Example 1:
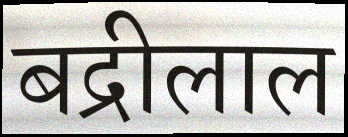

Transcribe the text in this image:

बद्रीलाल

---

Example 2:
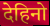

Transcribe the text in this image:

देहिनो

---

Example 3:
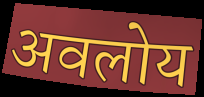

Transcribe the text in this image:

अवलोय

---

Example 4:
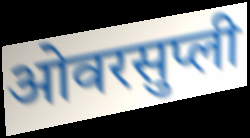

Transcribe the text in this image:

ओवरसुप्ली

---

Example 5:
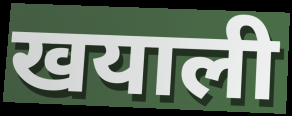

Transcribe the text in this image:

खयाली